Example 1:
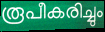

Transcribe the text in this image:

രൂപീകരിച്ചും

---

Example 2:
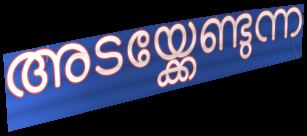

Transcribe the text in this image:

അടയ്ക്കേണ്ടുന്ന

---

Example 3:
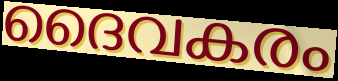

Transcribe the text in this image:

ദൈവകരം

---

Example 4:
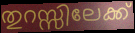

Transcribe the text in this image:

തുറസ്സിലേക്ക്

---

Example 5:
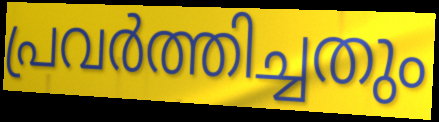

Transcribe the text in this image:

പ്രവർത്തിച്ചതും